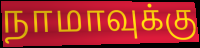
நாமாவுக்கு